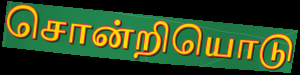
சொன்றியொடு